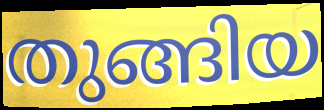
തുങ്ങിയ